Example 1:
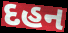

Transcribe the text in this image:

દહન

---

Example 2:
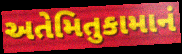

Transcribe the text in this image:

અતેમિતુકામાનં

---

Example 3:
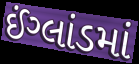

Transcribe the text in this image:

ઈંગ્લાંડમાં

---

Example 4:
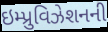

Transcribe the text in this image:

ઇમ્પ્રુવિઝેશનની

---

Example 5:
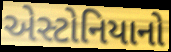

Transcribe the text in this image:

એસ્ટોનિયાનો